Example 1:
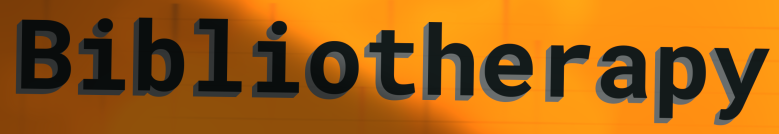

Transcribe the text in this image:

Bibliotherapy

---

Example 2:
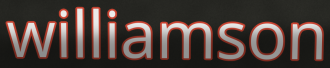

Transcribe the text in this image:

williamson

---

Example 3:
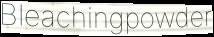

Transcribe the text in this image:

Bleachingpowder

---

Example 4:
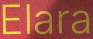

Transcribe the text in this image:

Elara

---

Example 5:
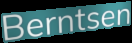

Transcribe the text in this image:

Berntsen